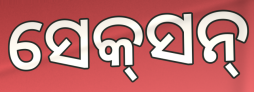
ସେକ୍‌ସନ୍